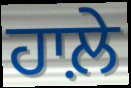
ਹਾਲ਼ੇ